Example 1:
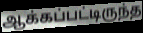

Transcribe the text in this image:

ஆக்கப்பட்டிருந்த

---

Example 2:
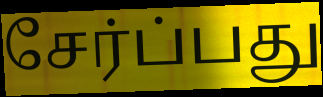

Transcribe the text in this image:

சேர்ப்பது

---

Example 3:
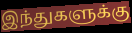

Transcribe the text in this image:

இந்துகளுக்கு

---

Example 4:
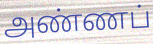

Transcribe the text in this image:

அண்ணப்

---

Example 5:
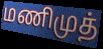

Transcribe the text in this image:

மணிமுத்